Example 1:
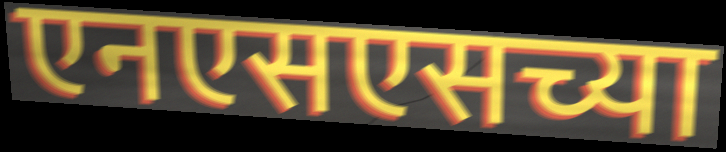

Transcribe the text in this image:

एनएसएसच्या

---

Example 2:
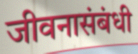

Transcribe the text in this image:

जीवनासंबंधी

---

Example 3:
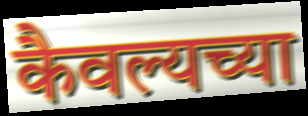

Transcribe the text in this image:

कैवल्यच्या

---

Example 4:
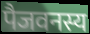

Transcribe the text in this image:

पैजवनस्य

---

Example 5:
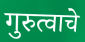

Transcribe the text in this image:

गुरुत्वाचे